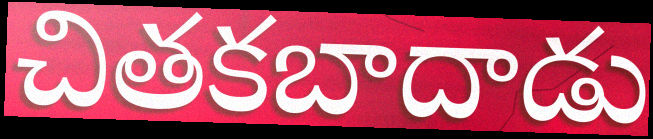
చితకబాదాడు